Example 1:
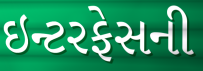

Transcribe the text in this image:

ઇન્ટરફેસની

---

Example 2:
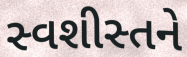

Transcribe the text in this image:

સ્વશીસ્તને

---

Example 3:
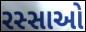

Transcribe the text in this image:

રસ્સાઓ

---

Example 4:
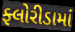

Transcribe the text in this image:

ફ્લોરીડામાં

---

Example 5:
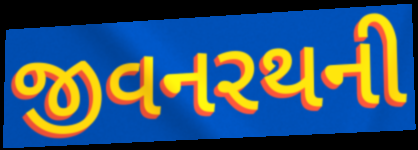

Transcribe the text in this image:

જીવનરથની